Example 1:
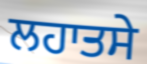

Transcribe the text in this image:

ਲਹਾਤਸੇ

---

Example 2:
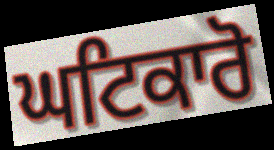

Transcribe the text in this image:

ਘਟਿਕਾਰੋ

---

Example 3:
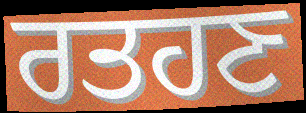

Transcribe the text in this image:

ਰਤਹਣ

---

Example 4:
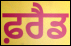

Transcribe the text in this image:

ਫ਼ਰੈਡ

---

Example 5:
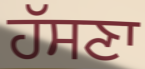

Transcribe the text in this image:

ਹੱਸਣਾ